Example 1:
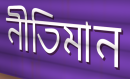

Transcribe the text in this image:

নীতিমান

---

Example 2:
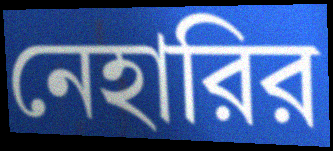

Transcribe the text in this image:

নেহারির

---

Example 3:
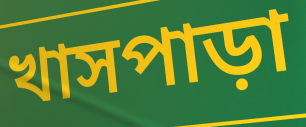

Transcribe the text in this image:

খাসপাড়া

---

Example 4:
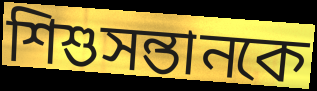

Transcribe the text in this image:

শিশুসন্তানকে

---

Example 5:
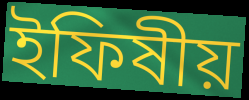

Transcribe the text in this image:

ইফিষীয়